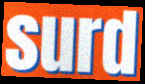
surd